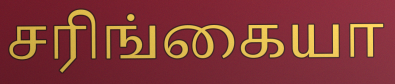
சரிங்கையா